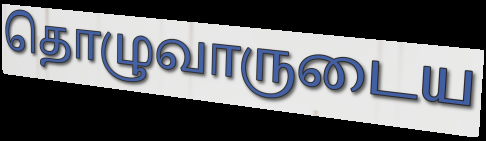
தொழுவாருடைய